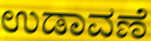
ಉಡಾವಣೆ